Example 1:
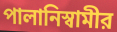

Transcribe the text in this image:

পালানিস্বামীর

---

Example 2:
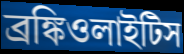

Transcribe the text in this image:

ব্রঙ্কিওলাইটিস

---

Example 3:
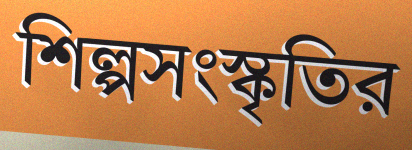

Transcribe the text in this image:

শিল্পসংস্কৃতির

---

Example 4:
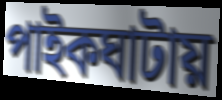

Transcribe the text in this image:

পাইকঘাটায়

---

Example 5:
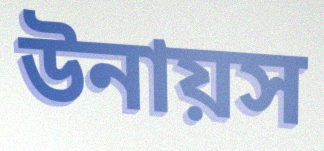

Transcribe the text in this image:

উনায়স